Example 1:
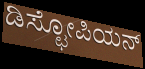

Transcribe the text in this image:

ಡಿಸ್ಟೋಪಿಯನ್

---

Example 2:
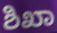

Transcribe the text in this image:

ಶಿಖಾ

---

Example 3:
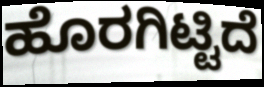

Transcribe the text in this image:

ಹೊರಗಿಟ್ಟಿದೆ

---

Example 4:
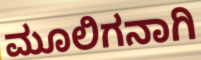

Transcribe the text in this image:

ಮೂಲಿಗನಾಗಿ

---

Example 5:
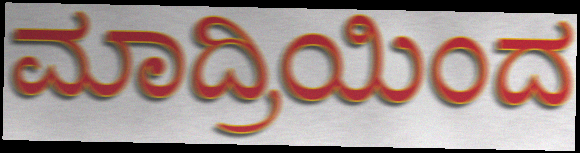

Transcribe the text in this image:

ಮಾದ್ರಿಯಿಂದ